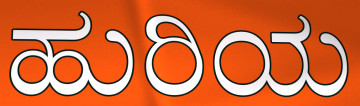
ಹುರಿಯ